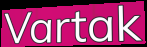
Vartak